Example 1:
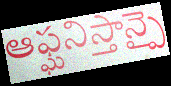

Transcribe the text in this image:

ఆఫ్ఘనిస్తాన్పై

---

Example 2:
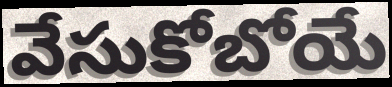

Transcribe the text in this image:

వేసుకోబోయే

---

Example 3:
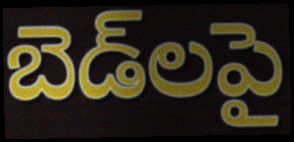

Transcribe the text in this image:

బెడ్‌లపై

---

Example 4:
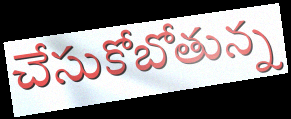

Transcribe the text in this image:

చేసుకోబోతున్న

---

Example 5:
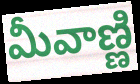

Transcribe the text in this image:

మీవాణ్ణి